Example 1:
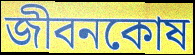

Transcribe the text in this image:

জীবনকোষ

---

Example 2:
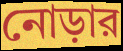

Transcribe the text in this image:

নোড়ার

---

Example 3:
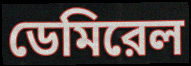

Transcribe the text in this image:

ডেমিরেল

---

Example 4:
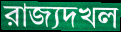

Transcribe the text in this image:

রাজ্যদখল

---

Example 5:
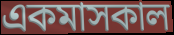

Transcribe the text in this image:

একমাসকাল